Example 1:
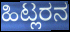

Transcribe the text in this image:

ಹಿಟ್ಲರನ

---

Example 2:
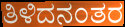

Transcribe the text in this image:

ತಿಳಿದನಂತರ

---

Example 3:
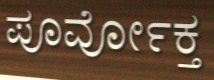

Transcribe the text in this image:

ಪೂರ್ವೋಕ್ತ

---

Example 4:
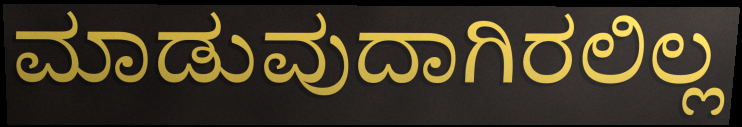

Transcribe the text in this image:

ಮಾಡುವುದಾಗಿರಲಿಲ್ಲ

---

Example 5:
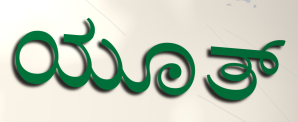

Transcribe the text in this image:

ಯೂತ್